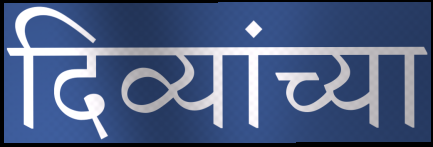
दिव्यांच्या